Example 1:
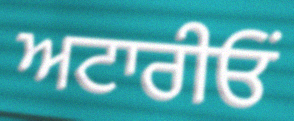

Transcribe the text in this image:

ਅਟਾਰੀਓਂ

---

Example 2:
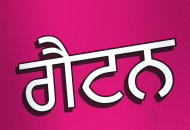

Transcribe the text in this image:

ਗੈਟਨ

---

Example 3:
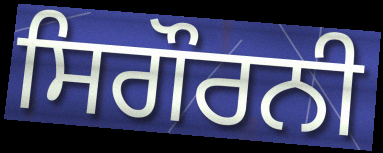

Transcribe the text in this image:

ਸਿਗੌਰਨੀ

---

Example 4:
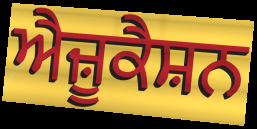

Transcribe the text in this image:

ਐਜ਼ੂਕੈਸ਼ਨ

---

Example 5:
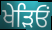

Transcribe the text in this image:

ਖੇੜਿਓਂ